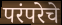
परंपरेचे